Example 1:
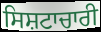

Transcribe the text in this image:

ਸਿਸ਼ਟਾਚਾਰੀ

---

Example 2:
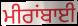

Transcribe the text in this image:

ਮੀਰਾਂਬਾਈ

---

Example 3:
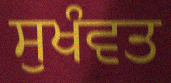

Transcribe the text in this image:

ਸੁਖੰਵਤ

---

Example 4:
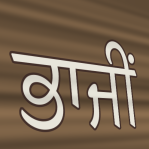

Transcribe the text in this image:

ਭਾਜੀਂ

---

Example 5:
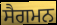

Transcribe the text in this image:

ਸੈਗਮਨ